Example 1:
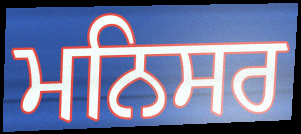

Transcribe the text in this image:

ਮਨਿਸਰ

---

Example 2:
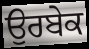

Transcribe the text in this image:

ਉਰਬੇਕ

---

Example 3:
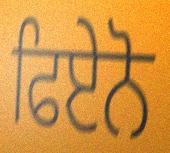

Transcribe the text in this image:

ਫਿਏਨੋ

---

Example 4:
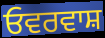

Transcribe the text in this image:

ਓਵਰਵਾਸ਼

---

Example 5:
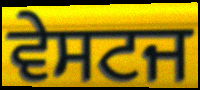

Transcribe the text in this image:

ਵੇਸਟਜ